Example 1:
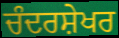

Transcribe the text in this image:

ਚੰਦਰਸ਼ੇਖਰ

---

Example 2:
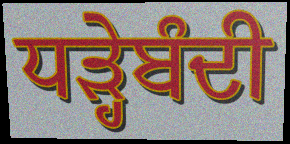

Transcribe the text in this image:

ਧੜ੍ਹੇਬੰਦੀ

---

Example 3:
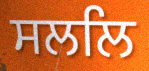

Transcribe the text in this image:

ਸਲਲਿ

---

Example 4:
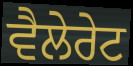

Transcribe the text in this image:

ਵੈਲੇਰੇਟ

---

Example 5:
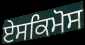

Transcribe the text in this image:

ਏਸਕਿਮੋਸ